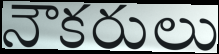
నౌకరులు